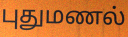
புதுமணல்